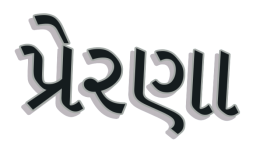
પ્રેરણા